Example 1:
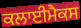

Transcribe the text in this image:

ਕਲਾਈਮੈਕਸ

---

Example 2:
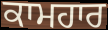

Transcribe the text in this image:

ਕਾਮਹਾਰ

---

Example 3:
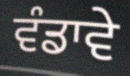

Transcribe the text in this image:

ਵੰਡਾਵੇ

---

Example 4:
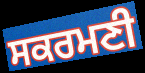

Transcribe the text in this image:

ਸਕਰਮਣੀ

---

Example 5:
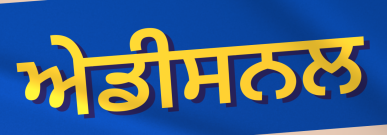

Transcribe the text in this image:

ਅੇਡੀਸਨਲ